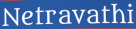
Netravathi